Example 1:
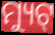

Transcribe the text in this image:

ମ୍ୟୁଟ୍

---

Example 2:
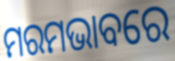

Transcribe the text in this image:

ମରମଭାବରେ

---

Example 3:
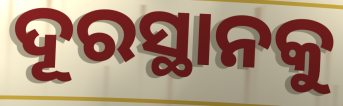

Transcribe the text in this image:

ଦୂରସ୍ଥାନକୁ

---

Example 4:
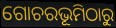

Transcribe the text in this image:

ଗୋଚରଭୂମିଠାରୁ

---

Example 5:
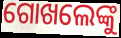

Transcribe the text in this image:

ଗୋଖଲେଙ୍କୁ